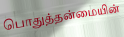
பொதுத்தன்மையின்